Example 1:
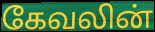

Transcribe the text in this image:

கேவலின்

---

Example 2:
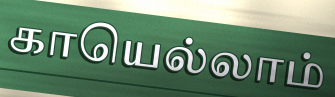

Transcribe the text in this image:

காயெல்லாம்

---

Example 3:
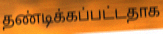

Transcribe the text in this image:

தண்டிக்கப்பட்டதாக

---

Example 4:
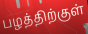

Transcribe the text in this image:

பழத்திற்குள்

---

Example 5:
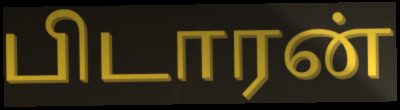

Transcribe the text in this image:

பிடாரன்